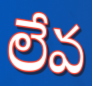
లేవ